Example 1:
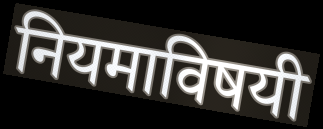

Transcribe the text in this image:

नियमाविषयी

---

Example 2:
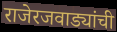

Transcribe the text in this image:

राजेरजवाड्यांची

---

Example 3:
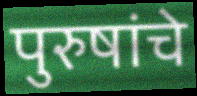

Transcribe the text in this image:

पुरुषांचे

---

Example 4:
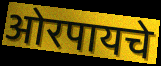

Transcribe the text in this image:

ओरपायचे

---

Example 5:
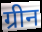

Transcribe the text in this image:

ग्रीन